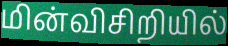
மின்விசிறியில்